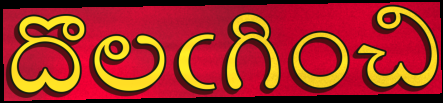
దొలఁగించి